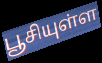
பூசியுள்ள